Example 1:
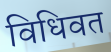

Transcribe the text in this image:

विधिवत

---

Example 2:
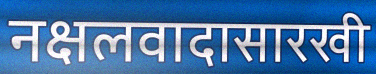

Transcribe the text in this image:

नक्षलवादासारखी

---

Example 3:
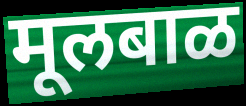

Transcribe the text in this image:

मूलबाळ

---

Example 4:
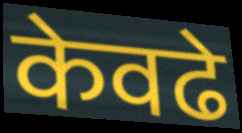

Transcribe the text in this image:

केवढे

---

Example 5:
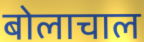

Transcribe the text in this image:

बोलाचाल